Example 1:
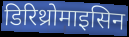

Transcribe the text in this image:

डिरिथ्रोमाइसिन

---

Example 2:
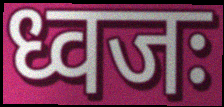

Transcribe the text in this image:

ध्वजः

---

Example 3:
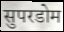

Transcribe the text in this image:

सुपरडोम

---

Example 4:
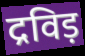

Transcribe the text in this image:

द्रविड़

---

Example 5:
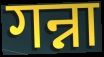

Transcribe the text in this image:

गन्ना